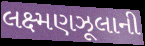
લક્ષ્મણઝૂલાની